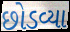
છોડવ્યા